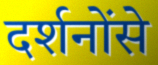
दर्शनोंसे